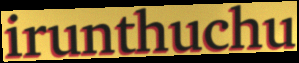
irunthuchu